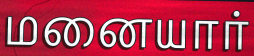
மனையார்